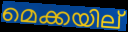
മെക്കയില്